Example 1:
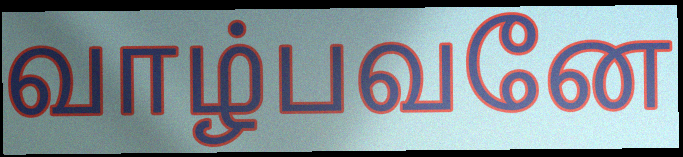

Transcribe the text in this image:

வாழ்பவனே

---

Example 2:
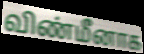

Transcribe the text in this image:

விண்மீனாக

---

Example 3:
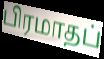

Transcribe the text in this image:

பிரமாதப்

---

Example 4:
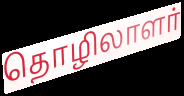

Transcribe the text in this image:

தொழிலாளர்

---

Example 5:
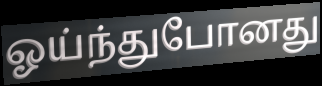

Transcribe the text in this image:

ஓய்ந்துபோனது